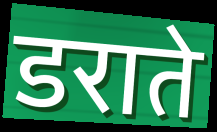
डराते